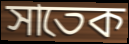
সাতেক